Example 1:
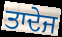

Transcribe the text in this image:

ਤਾਦੇਜ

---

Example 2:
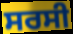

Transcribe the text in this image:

ਸਰਸੀ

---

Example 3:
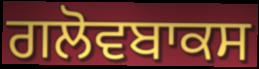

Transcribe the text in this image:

ਗਲੋਵਬਾਕਸ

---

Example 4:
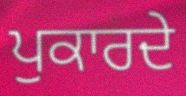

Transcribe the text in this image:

ਪੁਕਾਰਦੇ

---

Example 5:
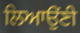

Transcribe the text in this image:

ਲਿਆਉਂਣੀ